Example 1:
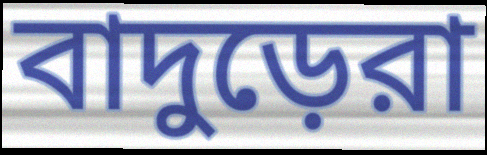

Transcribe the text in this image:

বাদুড়েরা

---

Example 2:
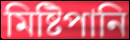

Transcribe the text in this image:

মিষ্টিপানি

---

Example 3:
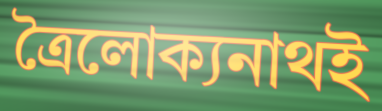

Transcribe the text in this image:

ত্রৈলোক্যনাথই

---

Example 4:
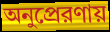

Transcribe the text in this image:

অনুপ্রেরণায়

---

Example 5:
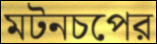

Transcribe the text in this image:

মটনচপের